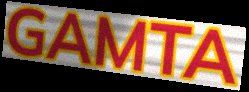
GAMTA